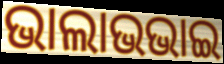
ଭାଲାଭଭାଇ